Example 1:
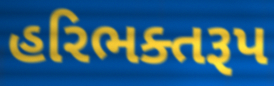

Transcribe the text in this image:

હરિભક્તરૂપ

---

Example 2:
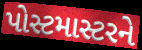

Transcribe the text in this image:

પોસ્ટમાસ્ટરને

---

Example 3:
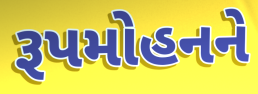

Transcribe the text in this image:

રૂપમોહનને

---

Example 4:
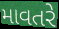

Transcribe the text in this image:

માવતરે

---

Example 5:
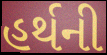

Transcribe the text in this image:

હર્થની